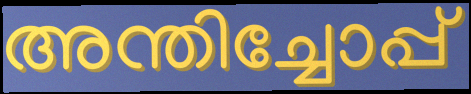
അന്തിച്ചോപ്പ്